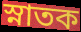
স্নাতক